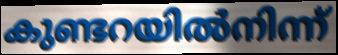
കുണ്ടറയിൽനിന്ന്